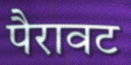
पैरावट